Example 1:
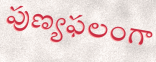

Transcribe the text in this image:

పుణ్యఫలంగా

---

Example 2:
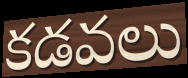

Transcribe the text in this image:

కడవలు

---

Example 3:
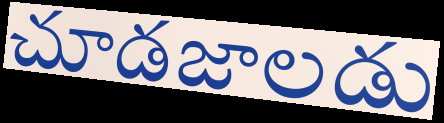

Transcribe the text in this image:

చూడజాలడు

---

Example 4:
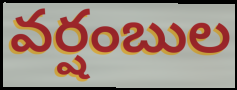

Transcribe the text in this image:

వర్షంబుల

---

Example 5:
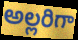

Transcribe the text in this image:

అల్లరిగా